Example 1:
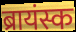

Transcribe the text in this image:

ब्रायंस्क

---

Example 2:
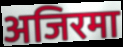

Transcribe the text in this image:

अजिरमा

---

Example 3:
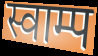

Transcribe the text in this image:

स्वाम्प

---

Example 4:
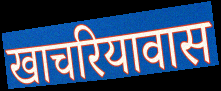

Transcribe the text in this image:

खाचरियावास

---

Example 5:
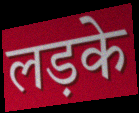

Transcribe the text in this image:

लड़के